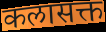
कलासक्त